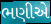
ભણીએ